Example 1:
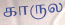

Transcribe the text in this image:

காருல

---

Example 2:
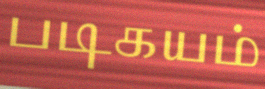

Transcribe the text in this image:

படிகயம்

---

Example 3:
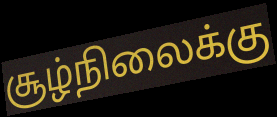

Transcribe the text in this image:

சூழ்நிலைக்கு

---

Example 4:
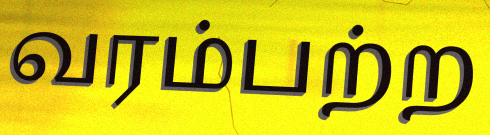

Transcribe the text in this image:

வரம்பற்ற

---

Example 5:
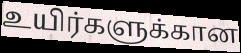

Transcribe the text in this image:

உயிர்களுக்கான